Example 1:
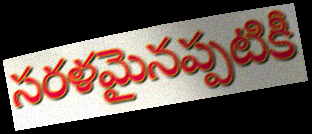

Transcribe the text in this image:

సరళమైనప్పటికీ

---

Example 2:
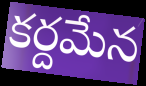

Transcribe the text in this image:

కర్దమేన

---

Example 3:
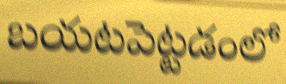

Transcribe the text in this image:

బయటపెట్టడంలో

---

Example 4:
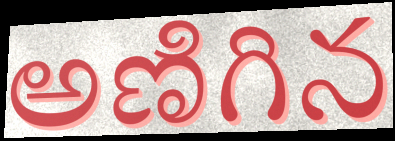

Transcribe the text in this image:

అణిగిన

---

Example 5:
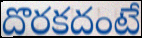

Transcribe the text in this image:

దొరకదంటే